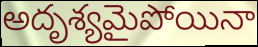
అదృశ్యమైపోయినా